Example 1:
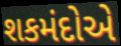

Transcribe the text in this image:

શકમંદોએ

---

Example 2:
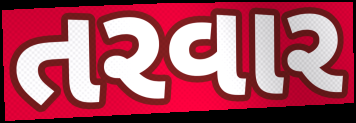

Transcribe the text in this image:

તરવાર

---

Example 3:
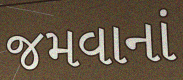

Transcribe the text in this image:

જમવાનાં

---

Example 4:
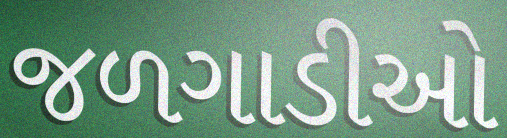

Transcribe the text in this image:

જળગાડીઓ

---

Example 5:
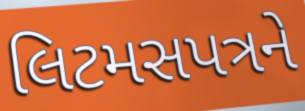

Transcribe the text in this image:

લિટમસપત્રને